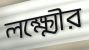
লক্ষ্মৌর